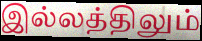
இல்லத்திலும்